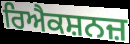
ਰਿਐਕਸ਼ਨਜ਼